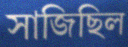
সাজিছিল